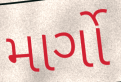
માર્ગો